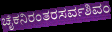
ಚೈಕನಿರಂತರಸರ್ವಶಿವಂ